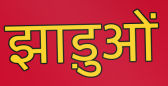
झाड़ुओं